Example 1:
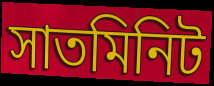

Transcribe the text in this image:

সাতমিনিট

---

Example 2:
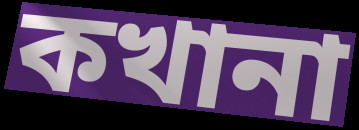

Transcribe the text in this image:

কখানা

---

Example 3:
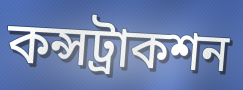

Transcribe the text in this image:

কন্সট্রাকশন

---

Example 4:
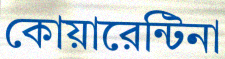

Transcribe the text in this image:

কোয়ারেন্টিনা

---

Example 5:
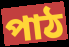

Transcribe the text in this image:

পাঠ